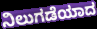
ನಿಲುಗಡೆಯಾದ